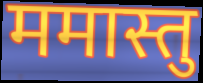
ममास्तु